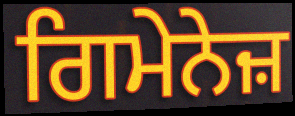
ਗਿਮੇਨੇਜ਼